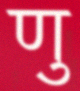
णु